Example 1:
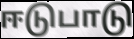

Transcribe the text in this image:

ஈடுபாடு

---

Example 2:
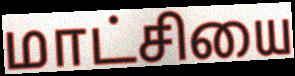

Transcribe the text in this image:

மாட்சியை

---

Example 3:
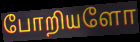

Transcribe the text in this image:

போறியளோ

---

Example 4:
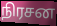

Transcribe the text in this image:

நிரசன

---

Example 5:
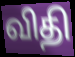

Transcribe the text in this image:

விதி